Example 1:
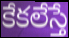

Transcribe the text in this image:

కేకలేస్తే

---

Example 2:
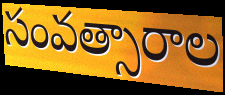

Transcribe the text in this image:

సంవత్సారాల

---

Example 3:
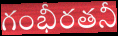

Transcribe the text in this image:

గంభీరతనీ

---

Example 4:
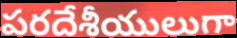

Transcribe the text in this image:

పరదేశీయులుగా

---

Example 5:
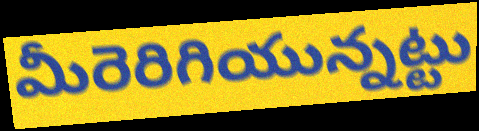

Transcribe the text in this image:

మీరెరిగియున్నట్టు